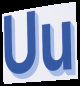
Uu